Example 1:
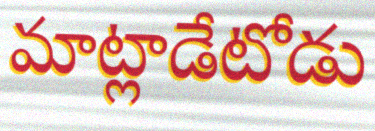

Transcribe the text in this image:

మాట్లాడేటోడు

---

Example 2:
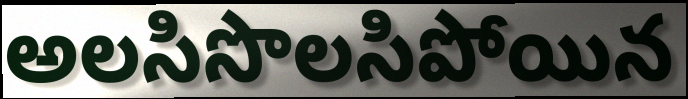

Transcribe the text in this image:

అలసిసొలసిపోయిన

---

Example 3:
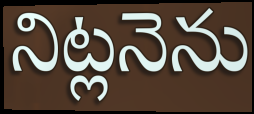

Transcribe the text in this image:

నిట్లనెను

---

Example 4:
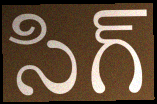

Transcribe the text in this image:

సిగ్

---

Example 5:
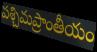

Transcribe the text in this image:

పశ్చిమప్రాంతీయం